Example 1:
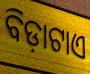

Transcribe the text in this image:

ବିଡ଼ାଟାଏ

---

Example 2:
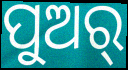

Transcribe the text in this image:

ପୁଅର୍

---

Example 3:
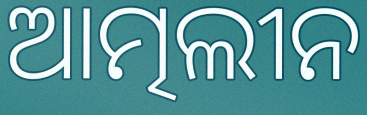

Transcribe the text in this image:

ଆତ୍ମଲୀନ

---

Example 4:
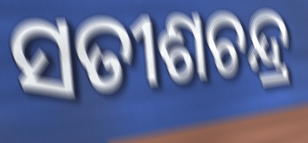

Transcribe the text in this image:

ସତୀଶଚନ୍ଦ୍ର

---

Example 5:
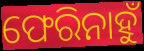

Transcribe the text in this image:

ଫେରିନାହୁଁ